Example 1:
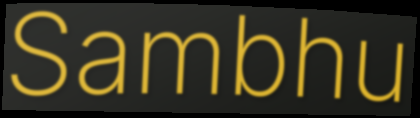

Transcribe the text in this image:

Sambhu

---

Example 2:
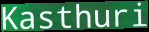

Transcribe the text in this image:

Kasthuri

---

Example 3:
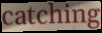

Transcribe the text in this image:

catching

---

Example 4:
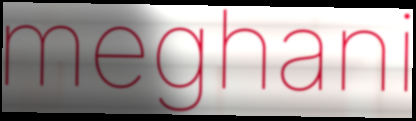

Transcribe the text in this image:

meghani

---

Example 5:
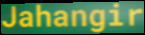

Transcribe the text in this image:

Jahangir